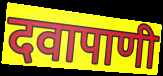
दवापाणी